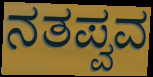
ನತಪ್ವವ